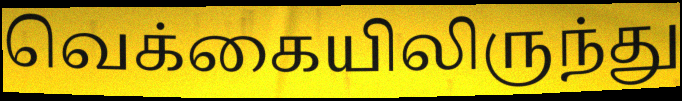
வெக்கையிலிருந்து